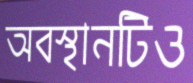
অবস্থানটিও